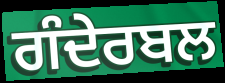
ਗੰਦੇਰਬਲ